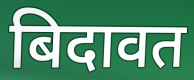
बिदावत